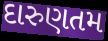
દારુણતમ